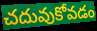
చదువుకోవడం